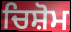
ਚਿਸ਼ੋਮ